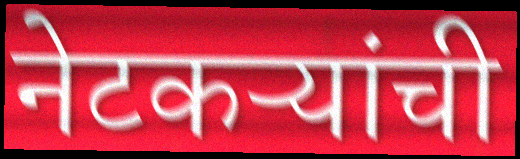
नेटकऱ्यांची